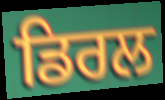
ਡਿਰਲ